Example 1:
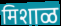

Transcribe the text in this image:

मिशाळ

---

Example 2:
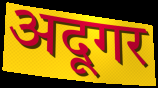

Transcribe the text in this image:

अदूगर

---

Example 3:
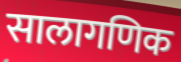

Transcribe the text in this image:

सालागणिक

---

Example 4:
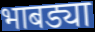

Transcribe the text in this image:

भाबड्या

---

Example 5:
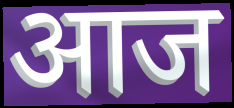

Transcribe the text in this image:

आज